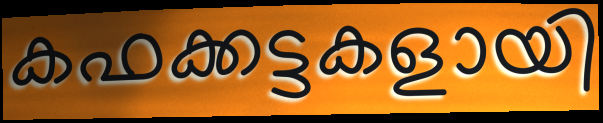
കഫക്കട്ടകളായി